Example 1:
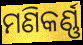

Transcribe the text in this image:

ମଣିକର୍ଣ୍ଣ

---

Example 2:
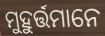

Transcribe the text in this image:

ମୁହୁର୍ତ୍ତମାନେ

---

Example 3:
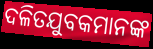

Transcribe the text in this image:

ଦଳିତଯୁବକମାନଙ୍କ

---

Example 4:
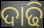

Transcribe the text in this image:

ଦାଢି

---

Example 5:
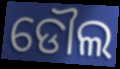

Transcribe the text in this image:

ଡୌଲ